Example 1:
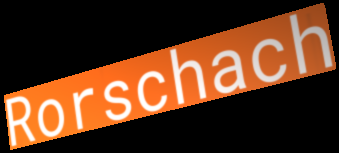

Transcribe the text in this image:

Rorschach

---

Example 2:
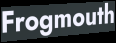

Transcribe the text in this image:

Frogmouth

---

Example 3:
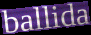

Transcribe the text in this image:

ballida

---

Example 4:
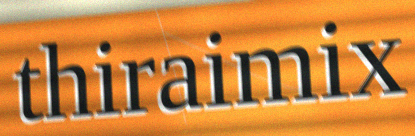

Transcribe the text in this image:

thiraimix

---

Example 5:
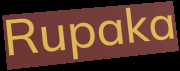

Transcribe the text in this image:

Rupaka